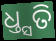
ଧ୍ତ୍ସତି